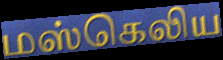
மஸ்கெலிய